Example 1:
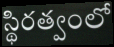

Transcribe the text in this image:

స్థిరత్వంలో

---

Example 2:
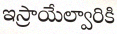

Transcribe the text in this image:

ఇస్రాయేల్వారికి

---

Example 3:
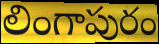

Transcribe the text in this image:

లింగాపురం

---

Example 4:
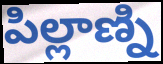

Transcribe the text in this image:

పిల్లాణ్ని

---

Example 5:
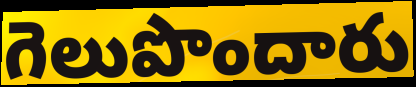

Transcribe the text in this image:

గెలుపొందారు